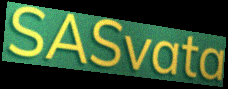
SASvata